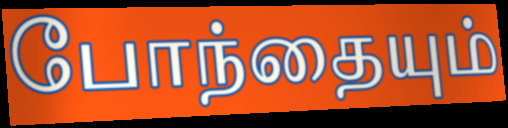
போந்தையும்